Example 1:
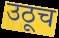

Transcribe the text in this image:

उठूच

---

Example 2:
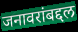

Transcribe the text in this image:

जनावरांबद्दल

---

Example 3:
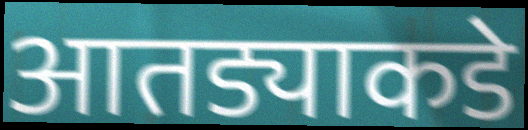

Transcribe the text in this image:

आतड्याकडे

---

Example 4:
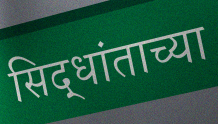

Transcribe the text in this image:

सिद्धांताच्या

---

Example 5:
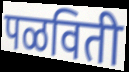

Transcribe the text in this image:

पळविती